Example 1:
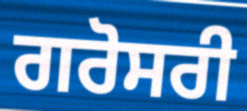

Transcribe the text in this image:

ਗਰੋਸਰੀ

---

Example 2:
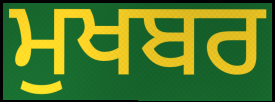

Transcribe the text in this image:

ਮੁਖਬਰ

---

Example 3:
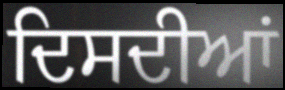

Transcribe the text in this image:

ਦਿਸਦੀਆਂ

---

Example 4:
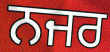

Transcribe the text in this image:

ਨਜਰ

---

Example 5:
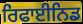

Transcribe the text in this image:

ਰਿਫਾਈਨਿਡ